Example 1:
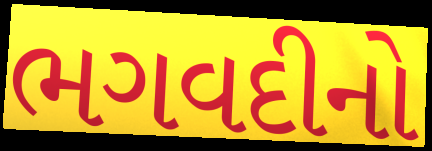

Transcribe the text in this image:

ભગવદીનો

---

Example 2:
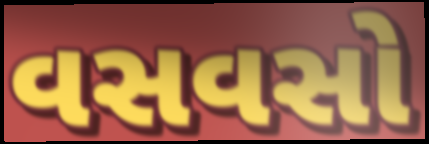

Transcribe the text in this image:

વસવસો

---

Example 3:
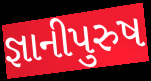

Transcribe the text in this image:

જ્ઞાનીપુરુષ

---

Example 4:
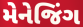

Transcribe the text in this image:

મેનેજિંગ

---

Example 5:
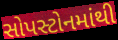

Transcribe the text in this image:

સોપસ્ટોનમાંથી